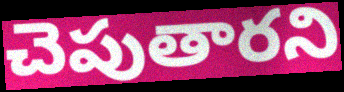
చెపుతారని